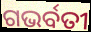
ଗଭର୍ବତୀ